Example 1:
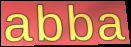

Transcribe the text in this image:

abba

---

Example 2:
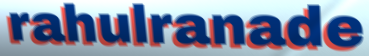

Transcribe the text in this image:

rahulranade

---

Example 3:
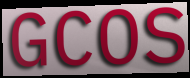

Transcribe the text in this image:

GCOS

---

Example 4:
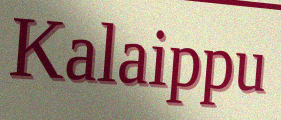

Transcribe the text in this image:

Kalaippu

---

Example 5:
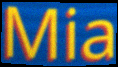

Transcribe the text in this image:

Mia